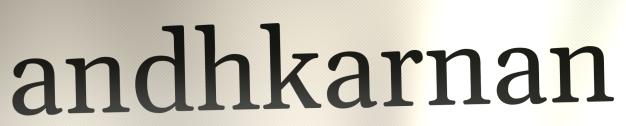
andhkarnan